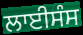
ਲਾਈਸੰਸ